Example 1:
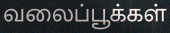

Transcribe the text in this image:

வலைப்பூக்கள்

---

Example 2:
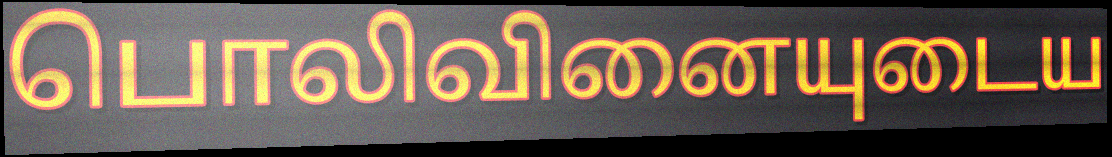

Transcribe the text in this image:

பொலிவினையுடைய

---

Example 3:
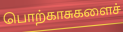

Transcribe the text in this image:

பொற்காசுகளைச்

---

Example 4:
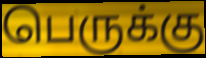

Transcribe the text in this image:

பெருக்கு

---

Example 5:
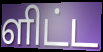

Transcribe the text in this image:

ளிட்ட